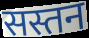
सस्तन